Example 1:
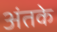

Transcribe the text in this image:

अंतके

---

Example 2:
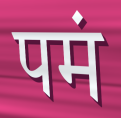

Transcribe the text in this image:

पमं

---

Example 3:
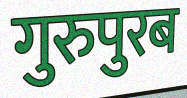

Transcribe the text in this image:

गुरुपुरब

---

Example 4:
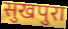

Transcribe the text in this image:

सुखपुरा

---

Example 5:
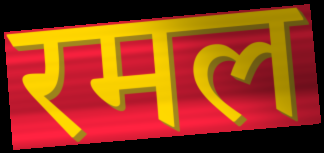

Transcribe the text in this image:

रमल